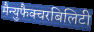
मैन्युफैक्चरबिलिटी